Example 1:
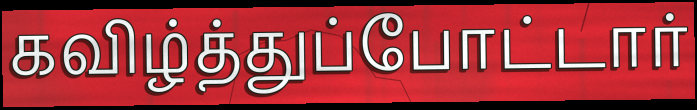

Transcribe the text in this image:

கவிழ்த்துப்போட்டார்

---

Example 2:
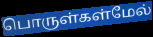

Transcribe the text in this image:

பொருள்கள்மேல்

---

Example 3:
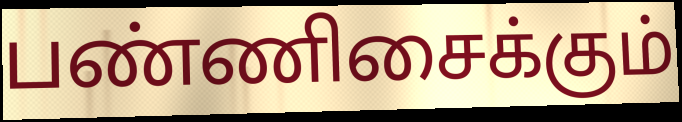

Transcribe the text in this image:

பண்ணிசைக்கும்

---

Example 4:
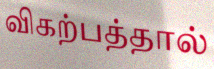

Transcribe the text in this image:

விகற்பத்தால்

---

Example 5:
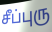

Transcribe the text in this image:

சீப்புரு